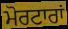
ਮੋਰਟਾਰਾਂ